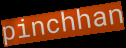
pinchhan